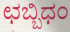
ಛಬ್ಬಿಧಂ